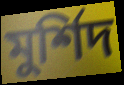
মুর্শিদ